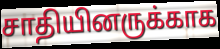
சாதியினருக்காக